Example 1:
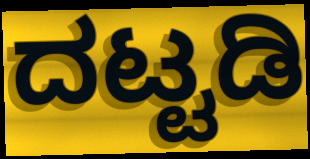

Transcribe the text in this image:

ದಟ್ಟಡಿ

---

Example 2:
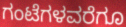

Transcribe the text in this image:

ಗಂಟೆಗಳವರೆಗೂ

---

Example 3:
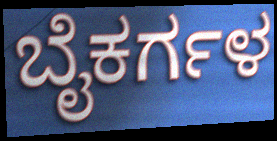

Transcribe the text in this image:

ಬೈಕರ್ಗಳ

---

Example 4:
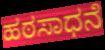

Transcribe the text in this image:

ಹಠಸಾಧನೆ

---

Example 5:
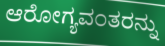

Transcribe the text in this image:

ಆರೋಗ್ಯವಂತರನ್ನು